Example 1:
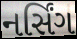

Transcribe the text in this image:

નર્સિંગ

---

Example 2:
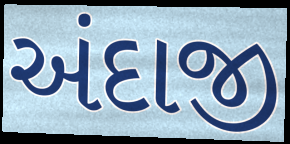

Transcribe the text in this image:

અંદાજી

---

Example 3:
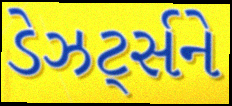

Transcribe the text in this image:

ડેઝર્ટ્સને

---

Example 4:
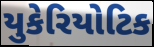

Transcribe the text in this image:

યુકેરિયોટિક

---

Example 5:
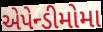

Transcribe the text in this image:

એપેન્ડીમોમા